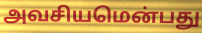
அவசியமென்பது